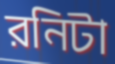
রনিটা